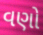
વણો